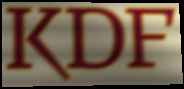
KDF